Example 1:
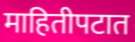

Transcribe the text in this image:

माहितीपटात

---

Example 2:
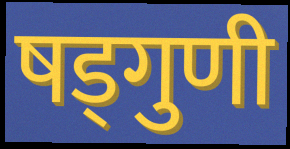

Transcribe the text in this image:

षड्गुणी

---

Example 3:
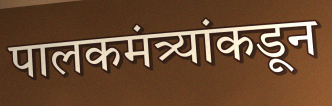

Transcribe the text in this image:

पालकमंत्र्यांकडून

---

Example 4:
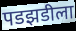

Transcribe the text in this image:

पडझडीला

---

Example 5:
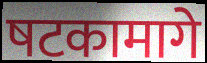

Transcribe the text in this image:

षटकामागे